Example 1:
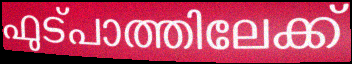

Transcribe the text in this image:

ഫുട്പാത്തിലേക്ക്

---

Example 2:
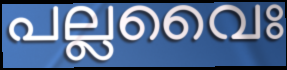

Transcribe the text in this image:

പല്ലവൈഃ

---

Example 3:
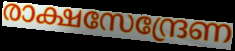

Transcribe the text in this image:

രാക്ഷസേന്ദ്രേണ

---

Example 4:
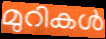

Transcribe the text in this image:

മുറികൾ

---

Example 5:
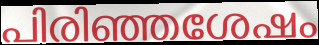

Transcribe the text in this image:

പിരിഞ്ഞശേഷം